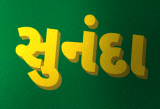
સુનંદા